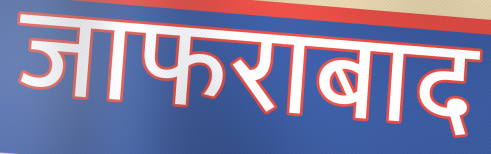
जाफराबाद